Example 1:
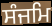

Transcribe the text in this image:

ਸੰਜਮਿ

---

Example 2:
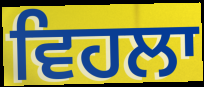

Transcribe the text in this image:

ਵਿਹਲਾ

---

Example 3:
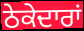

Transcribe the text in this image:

ਠੇਕੇਦਾਰਾਂ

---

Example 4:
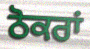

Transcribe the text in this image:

ਠੋਕਰਾਂ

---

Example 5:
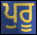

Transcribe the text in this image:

ਪੁਰੂ